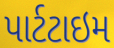
પાર્ટટાઇમ